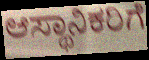
ಆಸ್ಥಾನಿಕರಿಗೆ